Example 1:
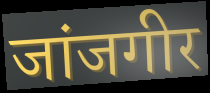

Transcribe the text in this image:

जांजगीर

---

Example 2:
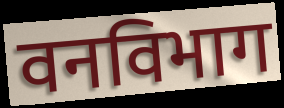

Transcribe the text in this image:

वनविभाग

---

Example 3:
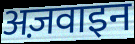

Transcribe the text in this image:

अज़वाइन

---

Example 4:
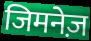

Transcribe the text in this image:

जिमनेज़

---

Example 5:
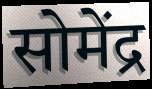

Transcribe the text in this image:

सोमेंद्र